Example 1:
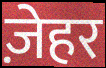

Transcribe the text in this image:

ज़ेहर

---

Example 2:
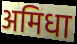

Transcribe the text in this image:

अमिधा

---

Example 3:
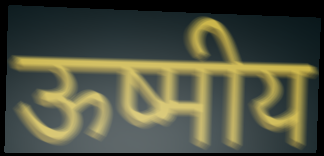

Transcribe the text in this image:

ऊष्मीय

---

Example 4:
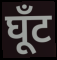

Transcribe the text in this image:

घूँट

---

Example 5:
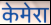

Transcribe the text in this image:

केमेरा